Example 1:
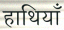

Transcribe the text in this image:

हाथियाँ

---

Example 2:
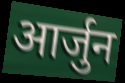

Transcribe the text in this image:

आर्जुन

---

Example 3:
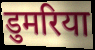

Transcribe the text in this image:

डुमरिया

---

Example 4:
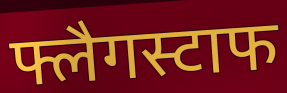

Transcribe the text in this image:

फ्लैगस्टाफ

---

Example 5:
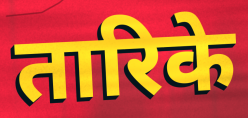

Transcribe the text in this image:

तारिके